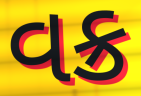
વક્ર